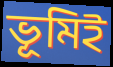
ভূমিই